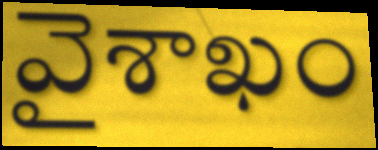
వైశాఖం